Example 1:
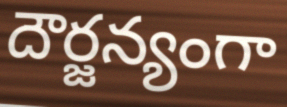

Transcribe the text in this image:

దౌర్జన్యంగా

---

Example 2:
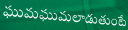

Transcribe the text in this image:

ఘుమఘుమలాడుతుంటే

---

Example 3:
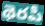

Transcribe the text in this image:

థెరపీ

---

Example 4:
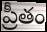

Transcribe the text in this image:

ప్రీతం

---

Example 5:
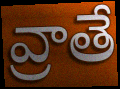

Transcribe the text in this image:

వ్రాతే